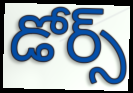
డోర్స్